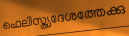
ഫെലിസ്ത്യദേശത്തേക്കു